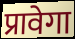
प्रावेगा